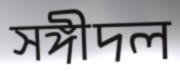
সঙ্গীদল